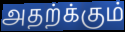
அதற்க்கும்